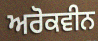
ਅਰੋਕਵੀਨ